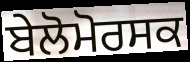
ਬੇਲੋਮੋਰਸਕ